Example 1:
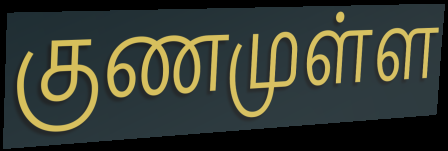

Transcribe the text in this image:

குணமுள்ள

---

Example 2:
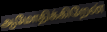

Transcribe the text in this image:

ஆமோதிக்கிறேன்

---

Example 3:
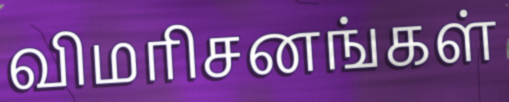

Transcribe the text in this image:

விமரிசனங்கள்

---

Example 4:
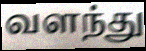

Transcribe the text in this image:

வளந்து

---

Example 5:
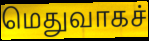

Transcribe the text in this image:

மெதுவாகச்